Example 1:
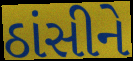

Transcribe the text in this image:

ઠાંસીને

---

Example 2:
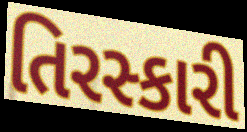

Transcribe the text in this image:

તિરસ્કારી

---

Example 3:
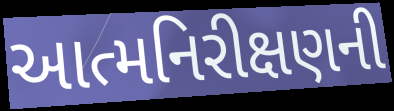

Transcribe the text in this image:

આત્મનિરીક્ષણની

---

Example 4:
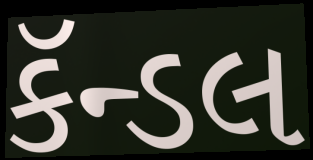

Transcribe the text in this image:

કૅન્ડલ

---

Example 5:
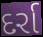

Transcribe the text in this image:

દર્રા